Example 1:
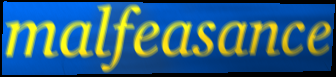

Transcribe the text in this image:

malfeasance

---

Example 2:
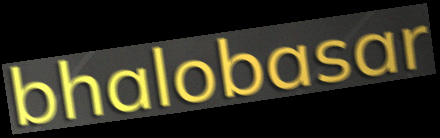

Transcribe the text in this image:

bhalobasar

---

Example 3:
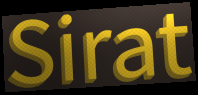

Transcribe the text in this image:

Sirat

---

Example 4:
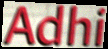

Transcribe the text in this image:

Adhi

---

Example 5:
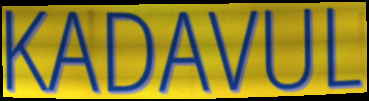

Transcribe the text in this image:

KADAVUL